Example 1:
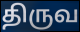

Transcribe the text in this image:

திருவ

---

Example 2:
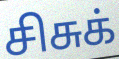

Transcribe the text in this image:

சிசுக்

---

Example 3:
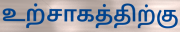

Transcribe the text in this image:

உற்சாகத்திற்கு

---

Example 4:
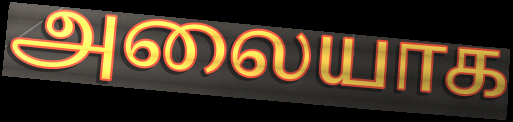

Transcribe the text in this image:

அலையாக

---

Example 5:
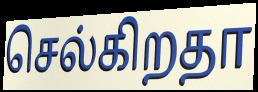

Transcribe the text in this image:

செல்கிறதா